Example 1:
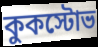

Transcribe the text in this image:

কুকস্টোভ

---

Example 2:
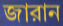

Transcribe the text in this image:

জারান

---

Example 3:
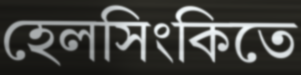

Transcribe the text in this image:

হেলসিংকিতে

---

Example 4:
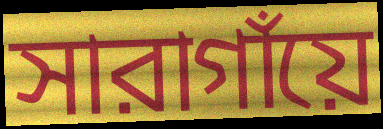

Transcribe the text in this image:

সারাগাঁয়ে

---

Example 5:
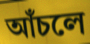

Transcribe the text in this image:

আঁচলে